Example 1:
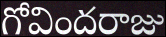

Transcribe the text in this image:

గోవిందరాజు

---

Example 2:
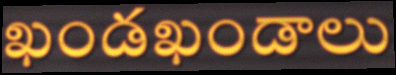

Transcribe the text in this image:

ఖండఖండాలు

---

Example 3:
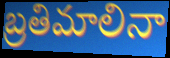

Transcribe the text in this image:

బ్రతిమాలినా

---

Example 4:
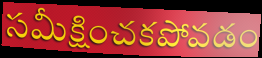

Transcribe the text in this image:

సమీక్షించకపోవడం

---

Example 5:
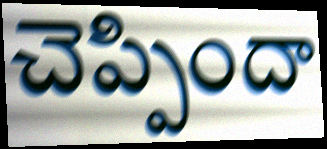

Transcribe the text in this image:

చెప్పిందా